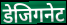
डेजिगनेट